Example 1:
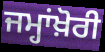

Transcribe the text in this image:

ਜਮ੍ਹਾਂਖ਼ੋਰੀ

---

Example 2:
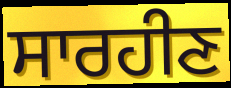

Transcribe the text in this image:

ਸਾਰਹੀਣ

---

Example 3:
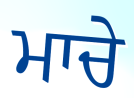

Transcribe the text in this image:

ਮਾਚੇ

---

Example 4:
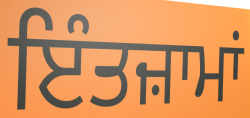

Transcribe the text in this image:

ਇੰਤਜ਼ਾਮਾਂ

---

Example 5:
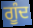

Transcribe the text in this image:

ਗੂੰਦ